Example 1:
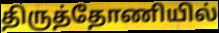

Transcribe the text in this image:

திருத்தோணியில்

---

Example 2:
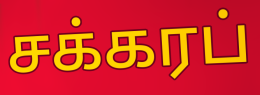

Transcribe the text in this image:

சக்கரப்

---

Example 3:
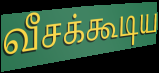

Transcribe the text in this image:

வீசக்கூடிய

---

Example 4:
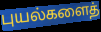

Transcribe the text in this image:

புயல்களைத்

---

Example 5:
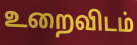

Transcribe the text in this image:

உறைவிடம்